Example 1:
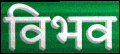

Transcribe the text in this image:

विभव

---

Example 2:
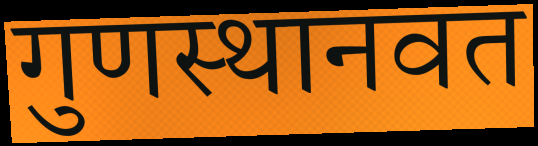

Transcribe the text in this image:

गुणस्थानवत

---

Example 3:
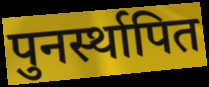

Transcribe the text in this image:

पुनर्स्थापित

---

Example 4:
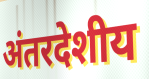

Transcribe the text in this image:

अंतरदेशीय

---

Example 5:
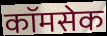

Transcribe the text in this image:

कॉमसेक